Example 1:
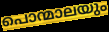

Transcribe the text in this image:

പൊന്മാലയും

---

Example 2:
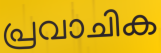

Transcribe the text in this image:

പ്രവാചിക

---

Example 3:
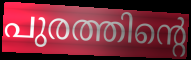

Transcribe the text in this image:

പുരത്തിന്റെ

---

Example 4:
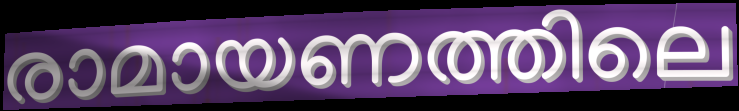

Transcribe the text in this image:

രാമായണത്തിലെ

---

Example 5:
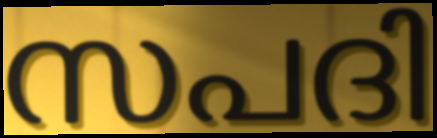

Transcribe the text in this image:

സപദി